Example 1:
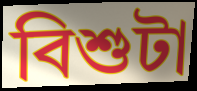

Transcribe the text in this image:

বিশুটা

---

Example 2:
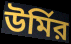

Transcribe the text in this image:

উর্মির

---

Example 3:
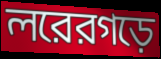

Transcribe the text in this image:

লরেরগড়ে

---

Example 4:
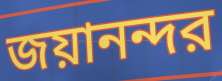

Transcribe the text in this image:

জয়ানন্দর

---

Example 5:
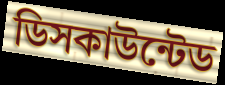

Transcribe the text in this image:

ডিসকাউন্টেড